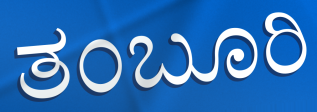
ತಂಬೂರಿ